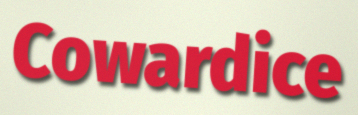
Cowardice